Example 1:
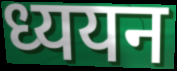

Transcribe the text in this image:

ध्ययन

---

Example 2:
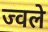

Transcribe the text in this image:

ज्वले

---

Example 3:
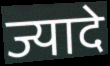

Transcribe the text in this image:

ज्यादे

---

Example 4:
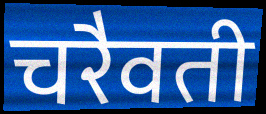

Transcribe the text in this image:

चरैवती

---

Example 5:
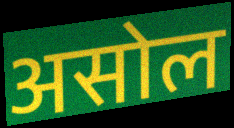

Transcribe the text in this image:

असोल